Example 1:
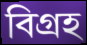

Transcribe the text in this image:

বিগ্ৰহ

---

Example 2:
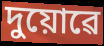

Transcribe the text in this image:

দুয়োৱে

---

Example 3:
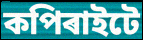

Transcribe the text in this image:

কপিৰাইটে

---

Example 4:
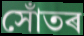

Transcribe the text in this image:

সোঁতৰ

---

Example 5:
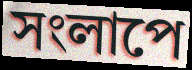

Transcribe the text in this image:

সংলাপে